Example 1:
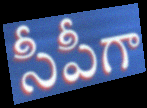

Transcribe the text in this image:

సీపీగా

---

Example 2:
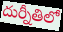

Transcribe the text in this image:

దుర్నీతిలో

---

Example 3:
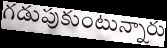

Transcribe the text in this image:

గడుపుకుంటున్నారు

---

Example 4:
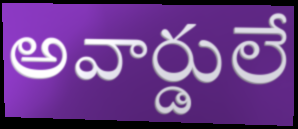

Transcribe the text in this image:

అవార్డులే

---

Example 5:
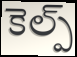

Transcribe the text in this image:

కెల్ప్